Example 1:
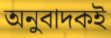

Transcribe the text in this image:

অনুবাদকই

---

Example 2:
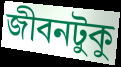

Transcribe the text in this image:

জীবনটুকু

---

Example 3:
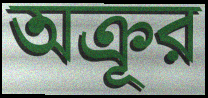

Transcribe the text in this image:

অক্রূর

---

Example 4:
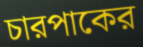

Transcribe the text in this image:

চারপাকের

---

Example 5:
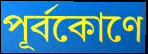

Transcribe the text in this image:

পূর্বকোণে